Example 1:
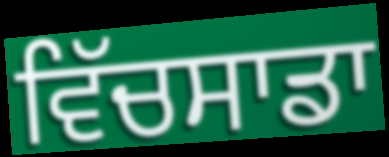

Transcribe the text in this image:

ਵਿੱਚਸਾਡਾ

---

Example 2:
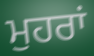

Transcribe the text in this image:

ਮੁਹਰਾਂ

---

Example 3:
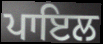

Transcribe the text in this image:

ਪਾਇਲ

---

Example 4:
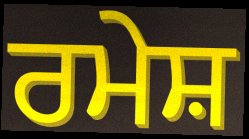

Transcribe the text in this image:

ਰਮੇਸ਼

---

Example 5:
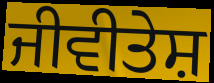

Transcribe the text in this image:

ਜੀਵੀਤੇਸ਼